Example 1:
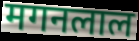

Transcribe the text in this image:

मगनलाल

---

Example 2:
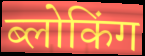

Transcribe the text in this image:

ब्लोकिंग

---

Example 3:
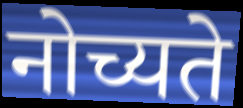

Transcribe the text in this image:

नोच्यते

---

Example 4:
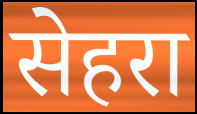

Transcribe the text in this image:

सेहरा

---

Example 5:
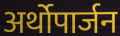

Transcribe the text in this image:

अर्थोपार्जन